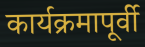
कार्यक्रमापूर्वी